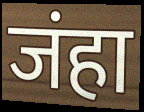
जंहा